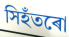
সিহঁতৰো